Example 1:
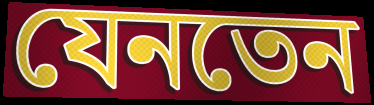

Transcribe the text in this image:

যেনতেন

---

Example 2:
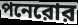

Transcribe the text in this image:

পনেরোর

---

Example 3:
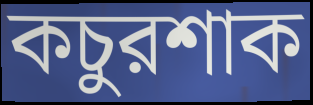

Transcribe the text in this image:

কচুরশাক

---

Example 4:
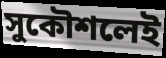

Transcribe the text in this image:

সুকৌশলেই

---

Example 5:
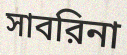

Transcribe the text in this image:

সাবরিনা